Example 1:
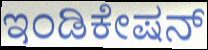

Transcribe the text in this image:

ಇಂಡಿಕೇಷನ್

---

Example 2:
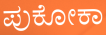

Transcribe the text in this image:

ಪುಕೋಕಾ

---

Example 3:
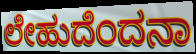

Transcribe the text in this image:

ಲೇಹುದೆಂದನಾ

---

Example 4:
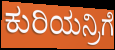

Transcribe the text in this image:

ಕುರಿಯನ್ರಿಗೆ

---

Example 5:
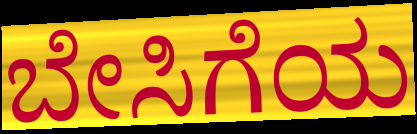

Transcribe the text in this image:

ಬೇಸಿಗೆಯ